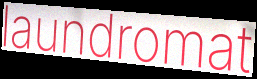
laundromat